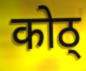
कोठ्